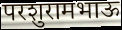
परशुरामभाऊ